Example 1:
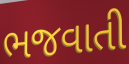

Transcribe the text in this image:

ભજવાતી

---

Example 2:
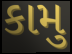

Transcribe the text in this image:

કામુ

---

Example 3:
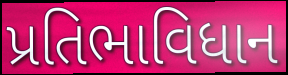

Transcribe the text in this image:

પ્રતિભાવિધાન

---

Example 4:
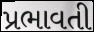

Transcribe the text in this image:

પ્રભાવતી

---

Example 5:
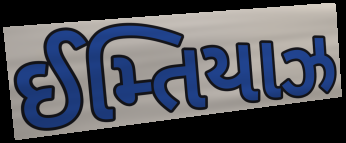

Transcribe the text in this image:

ઈમ્તિયાઝ